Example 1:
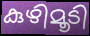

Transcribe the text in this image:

കുഴിമൂടി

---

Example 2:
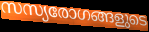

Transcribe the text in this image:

സസ്യരോഗങ്ങളുടെ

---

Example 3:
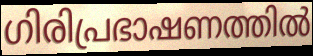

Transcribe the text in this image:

ഗിരിപ്രഭാഷണത്തിൽ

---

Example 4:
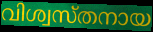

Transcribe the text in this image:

വിശ്വസ്തനായ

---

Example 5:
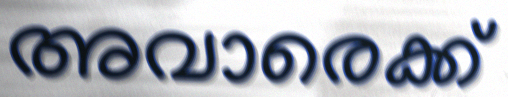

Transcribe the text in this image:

അവാരെക്ക്